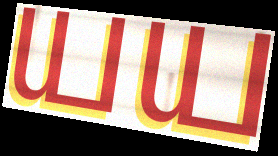
யய